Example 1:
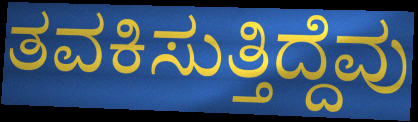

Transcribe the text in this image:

ತವಕಿಸುತ್ತಿದ್ದೆವು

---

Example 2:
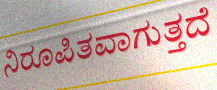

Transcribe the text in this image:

ನಿರೂಪಿತವಾಗುತ್ತದೆ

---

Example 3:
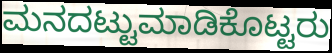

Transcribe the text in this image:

ಮನದಟ್ಟುಮಾಡಿಕೊಟ್ಟರು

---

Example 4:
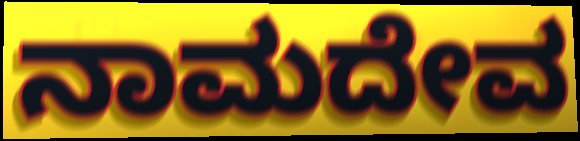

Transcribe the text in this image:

ನಾಮದೇವ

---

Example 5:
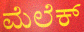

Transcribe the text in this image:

ಮೆಲೆಕ್